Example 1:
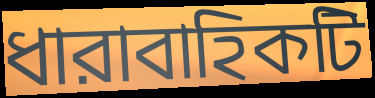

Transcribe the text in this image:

ধারাবাহিকটি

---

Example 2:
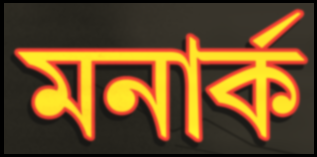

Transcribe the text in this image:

মনার্ক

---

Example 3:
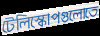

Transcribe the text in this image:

টেলিস্কোপগুলোতে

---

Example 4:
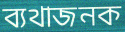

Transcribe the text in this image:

ব্যথাজনক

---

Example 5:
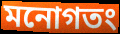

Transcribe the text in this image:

মনোগতং